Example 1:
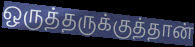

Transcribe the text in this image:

ஒருத்தருக்குத்தான்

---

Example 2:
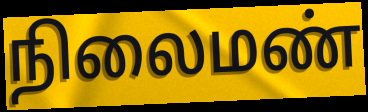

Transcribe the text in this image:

நிலைமண்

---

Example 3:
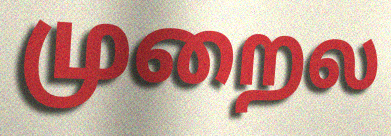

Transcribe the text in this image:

முறைல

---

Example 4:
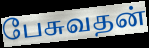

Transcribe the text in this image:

பேசுவதன்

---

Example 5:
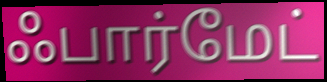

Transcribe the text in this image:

ஃபார்மேட்